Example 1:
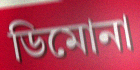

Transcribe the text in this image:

ডিমোনা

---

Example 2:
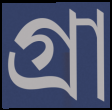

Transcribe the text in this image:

গ্রা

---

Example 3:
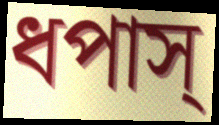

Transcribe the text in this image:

ধপাস্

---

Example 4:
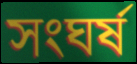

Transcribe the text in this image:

সংঘর্ষ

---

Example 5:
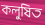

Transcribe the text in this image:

কলুষিত